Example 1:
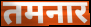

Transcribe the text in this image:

तमनार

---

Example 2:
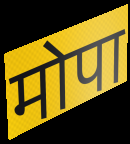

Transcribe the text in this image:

मोपा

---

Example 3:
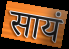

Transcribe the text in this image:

सायं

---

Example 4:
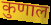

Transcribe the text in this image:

कुणाल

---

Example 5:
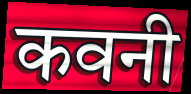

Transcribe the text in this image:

कवनी